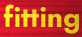
fitting